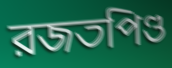
রজতপিণ্ড